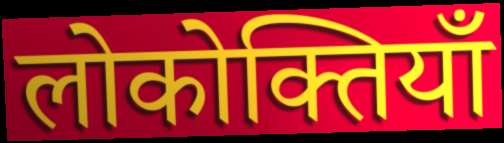
लोकोक्तियाँ